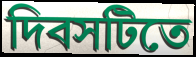
দিবসটিতে